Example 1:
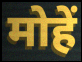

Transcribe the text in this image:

मोहें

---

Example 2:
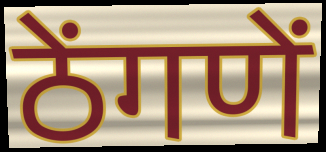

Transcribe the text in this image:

ठेंगणें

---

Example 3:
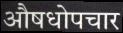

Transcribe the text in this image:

औषधोपचार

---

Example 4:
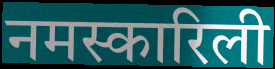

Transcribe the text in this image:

नमस्कारिली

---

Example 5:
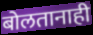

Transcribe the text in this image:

बोलतानाही